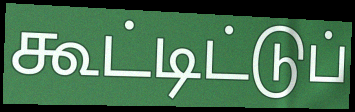
கூட்டிட்டுப்